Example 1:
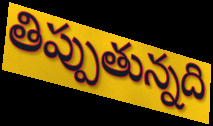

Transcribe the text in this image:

తిప్పుతున్నది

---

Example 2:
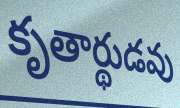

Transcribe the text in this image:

కృతార్థుడవు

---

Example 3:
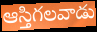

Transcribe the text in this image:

ఆస్తిగలవాడు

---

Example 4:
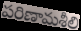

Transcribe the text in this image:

పరిణామశీలి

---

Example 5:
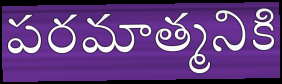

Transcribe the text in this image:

పరమాత్మనికి